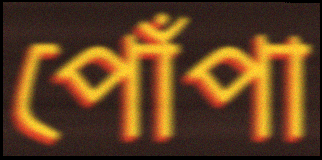
পোঁপা